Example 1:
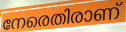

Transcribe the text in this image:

നേരെതിരാണ്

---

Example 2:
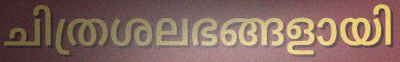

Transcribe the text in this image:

ചിത്രശലഭങ്ങളായി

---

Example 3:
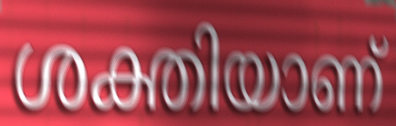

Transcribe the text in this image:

ശക്തിയാണ്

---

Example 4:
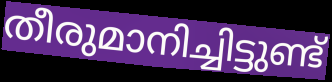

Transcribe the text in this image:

തീരുമാനിച്ചിട്ടുണ്ട്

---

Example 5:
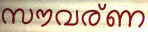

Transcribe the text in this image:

സൗവര്ണ